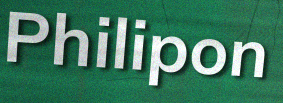
Philipon